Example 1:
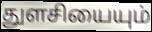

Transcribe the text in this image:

துளசியையும்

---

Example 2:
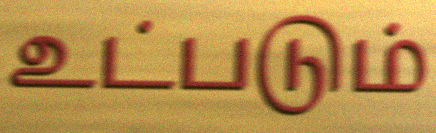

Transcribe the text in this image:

உட்படும்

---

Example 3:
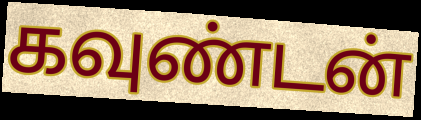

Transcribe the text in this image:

கவுண்டன்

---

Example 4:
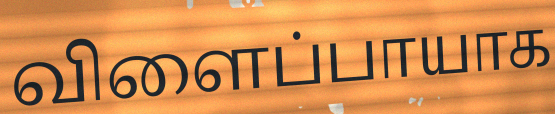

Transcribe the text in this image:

விளைப்பாயாக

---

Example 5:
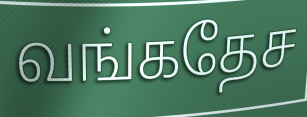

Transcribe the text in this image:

வங்கதேச